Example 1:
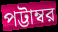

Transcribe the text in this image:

পট্টাম্বর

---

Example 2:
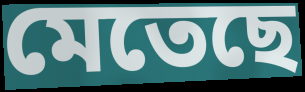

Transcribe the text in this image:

মেতেছে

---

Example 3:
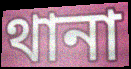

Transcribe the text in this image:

থানা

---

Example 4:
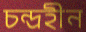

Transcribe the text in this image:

চন্দ্রহীন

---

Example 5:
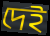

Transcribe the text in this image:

দেই